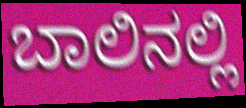
ಬಾಲಿನಲ್ಲಿ